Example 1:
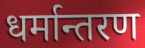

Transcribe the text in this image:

धर्मान्तरण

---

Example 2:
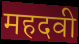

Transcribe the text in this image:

महदवी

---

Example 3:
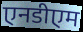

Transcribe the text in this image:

एनडीएम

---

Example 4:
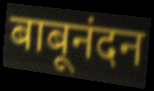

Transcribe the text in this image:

बाबूनंदन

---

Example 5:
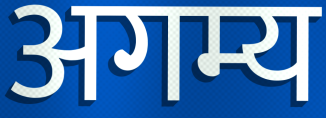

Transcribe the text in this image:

अगम्य